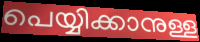
പെയ്യിക്കാനുള്ള